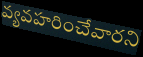
వ్యవహరించేవారని